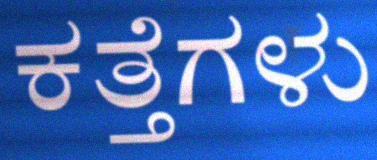
ಕತ್ತೆಗಳು